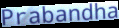
Prabandha